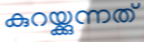
കുറയ്ക്കുന്നത്